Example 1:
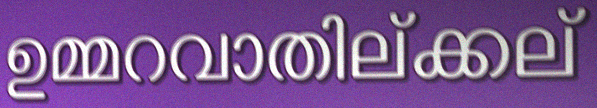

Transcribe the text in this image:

ഉമ്മറവാതില്ക്കല്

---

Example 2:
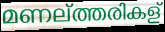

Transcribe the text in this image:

മണല്ത്തരികള്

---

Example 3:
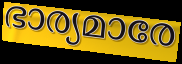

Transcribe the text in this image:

ഭാര്യമാരേ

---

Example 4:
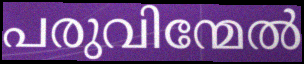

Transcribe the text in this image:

പരുവിന്മേൽ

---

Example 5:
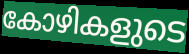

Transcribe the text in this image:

കോഴികളുടെ